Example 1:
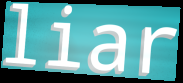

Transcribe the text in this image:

liar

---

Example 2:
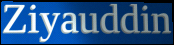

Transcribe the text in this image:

Ziyauddin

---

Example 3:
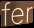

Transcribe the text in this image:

fer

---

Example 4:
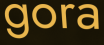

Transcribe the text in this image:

gora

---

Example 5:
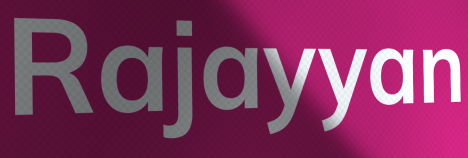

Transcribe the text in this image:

Rajayyan